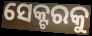
ସେକ୍ଟରକୁ